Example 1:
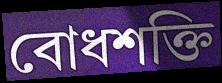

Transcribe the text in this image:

বোধশক্তি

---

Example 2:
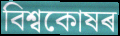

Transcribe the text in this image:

বিশ্বকোষৰ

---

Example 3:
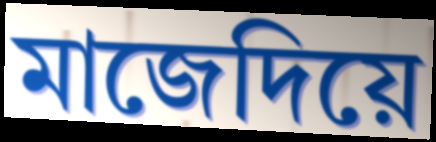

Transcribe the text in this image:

মাজেদিয়ে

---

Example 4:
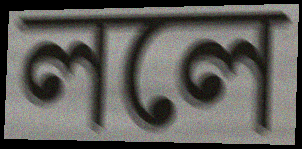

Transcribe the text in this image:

ললে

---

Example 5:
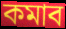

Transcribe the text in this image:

কমাব